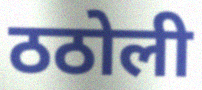
ठठोली